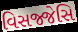
વિસજ્જેસિ